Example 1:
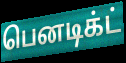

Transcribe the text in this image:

பெனடிக்ட்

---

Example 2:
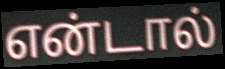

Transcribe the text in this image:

என்டால்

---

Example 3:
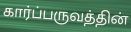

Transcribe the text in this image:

கார்ப்பருவத்தின்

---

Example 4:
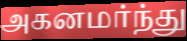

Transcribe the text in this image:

அகனமர்ந்து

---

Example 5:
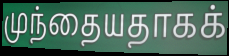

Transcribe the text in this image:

முந்தையதாகக்